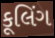
કૂલિંગ